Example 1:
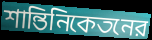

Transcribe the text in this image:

শান্তিনিকেতনের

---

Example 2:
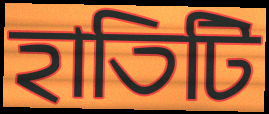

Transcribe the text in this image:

হাতিটি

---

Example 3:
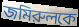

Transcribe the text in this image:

জমিরুলকে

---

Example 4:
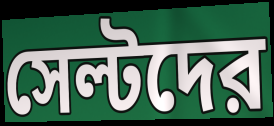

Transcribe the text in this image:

সেল্টদের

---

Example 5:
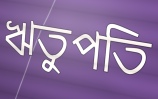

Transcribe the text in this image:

ঋতুপতি